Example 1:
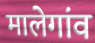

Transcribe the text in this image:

मालेगांव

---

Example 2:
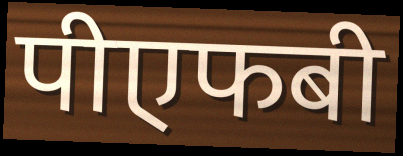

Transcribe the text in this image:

पीएफबी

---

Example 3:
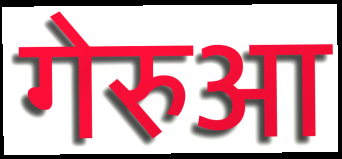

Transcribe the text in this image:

गेरुआ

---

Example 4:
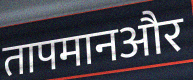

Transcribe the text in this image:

तापमानऔर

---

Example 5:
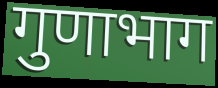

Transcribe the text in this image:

गुणाभाग